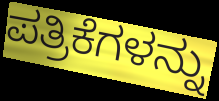
ಪತ್ರಿಕೆಗಳನ್ನು